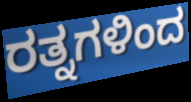
ರತ್ನಗಳಿಂದ